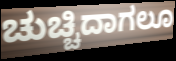
ಚುಚ್ಚಿದಾಗಲೂ